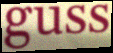
guss